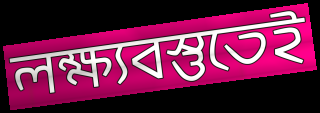
লক্ষ্যবস্তুতেই